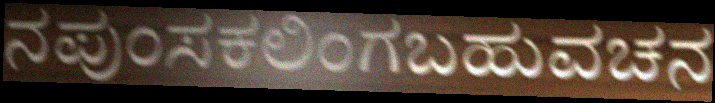
ನಪುಂಸಕಲಿಂಗಬಹುವಚನ